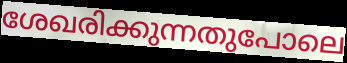
ശേഖരിക്കുന്നതുപോലെ